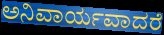
ಅನಿವಾರ್ಯವಾದರೆ